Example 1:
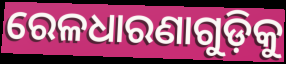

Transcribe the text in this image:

ରେଳଧାରଣାଗୁଡ଼ିକୁ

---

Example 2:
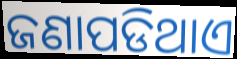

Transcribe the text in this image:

ଜଣାପଡିଥାଏ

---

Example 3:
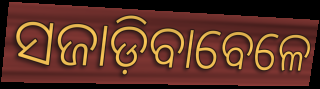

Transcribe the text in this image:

ସଜାଡ଼ିବାବେଳେ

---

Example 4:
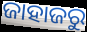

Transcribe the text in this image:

ଜାହାଜରୁ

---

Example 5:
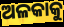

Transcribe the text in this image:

ଅଳକାକୁ